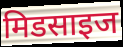
मिडसाइज